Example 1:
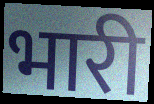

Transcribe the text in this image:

भारी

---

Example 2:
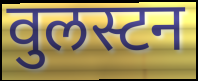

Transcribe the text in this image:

वुलस्टन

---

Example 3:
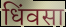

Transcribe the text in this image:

धिंवसा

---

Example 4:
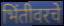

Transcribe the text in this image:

भिंतीवरचे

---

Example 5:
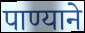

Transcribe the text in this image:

पाण्याने